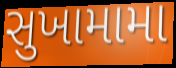
સુખામામા